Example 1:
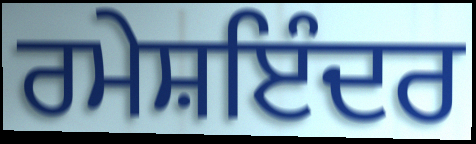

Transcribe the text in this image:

ਰਮੇਸ਼ਇੰਦਰ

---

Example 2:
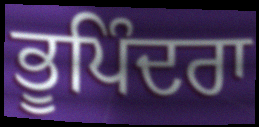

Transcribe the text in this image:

ਭੂਪਿੰਦਰਾ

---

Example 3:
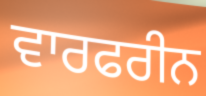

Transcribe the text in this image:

ਵਾਰਫਰੀਨ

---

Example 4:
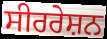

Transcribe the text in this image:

ਸੀਰਰੇਸ਼ਨ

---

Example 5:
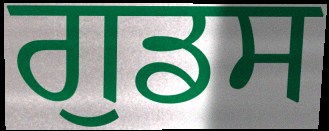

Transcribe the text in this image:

ਗੁਡਸ